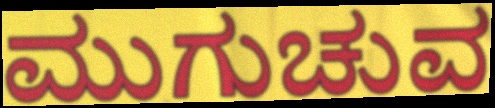
ಮುಗುಚುವ